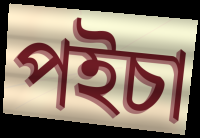
পইচা